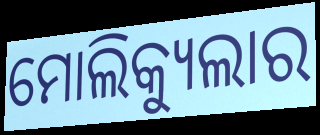
ମୋଲିକ୍ୟୁଲାର